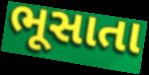
ભૂસાતા